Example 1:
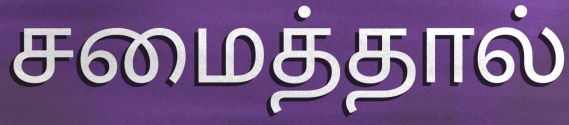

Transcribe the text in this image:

சமைத்தால்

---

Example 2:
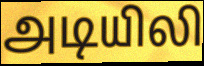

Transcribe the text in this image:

அடியிலி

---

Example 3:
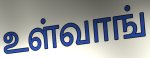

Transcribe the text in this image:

உள்வாங்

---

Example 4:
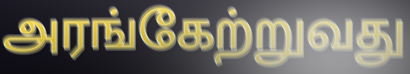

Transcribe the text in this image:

அரங்கேற்றுவது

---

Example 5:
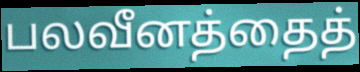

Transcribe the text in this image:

பலவீனத்தைத்